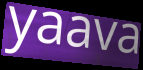
yaava